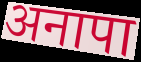
अनापा